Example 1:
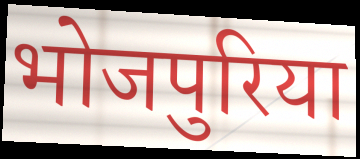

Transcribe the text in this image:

भोजपुरिया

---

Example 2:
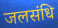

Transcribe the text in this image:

जलसंधि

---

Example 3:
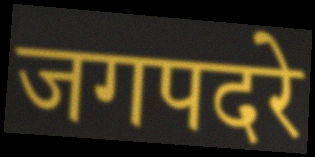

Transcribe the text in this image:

जगपदरे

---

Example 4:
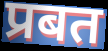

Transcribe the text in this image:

प्रबत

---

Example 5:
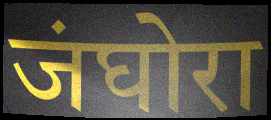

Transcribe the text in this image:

जंघोरा